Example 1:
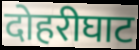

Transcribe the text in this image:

दोहरीघाट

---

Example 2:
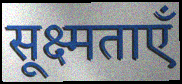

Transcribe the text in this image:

सूक्ष्मताएँ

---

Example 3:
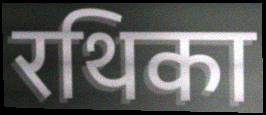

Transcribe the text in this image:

रथिका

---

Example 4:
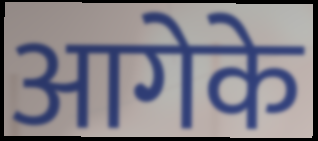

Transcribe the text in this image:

आगेके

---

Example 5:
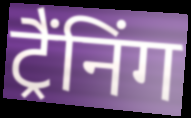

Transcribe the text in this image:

ट्रैंनिंग